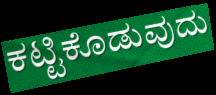
ಕಟ್ಟಿಕೊಡುವುದು